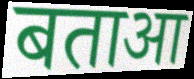
बताआ